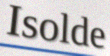
Isolde